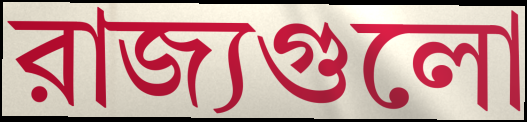
রাজ্যগুলো